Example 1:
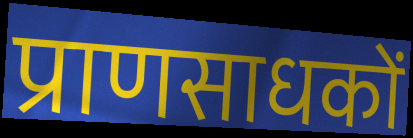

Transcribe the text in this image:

प्राणसाधकों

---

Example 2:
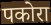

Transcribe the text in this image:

पकोरा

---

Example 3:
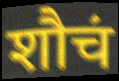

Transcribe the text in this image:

शौचं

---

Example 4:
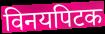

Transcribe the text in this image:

विनयपिटक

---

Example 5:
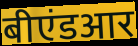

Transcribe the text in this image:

बीएंडआर